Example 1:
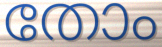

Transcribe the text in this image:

തോം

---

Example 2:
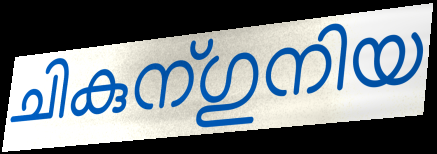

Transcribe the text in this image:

ചികുന്ഗുനിയ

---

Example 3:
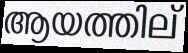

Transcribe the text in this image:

ആയത്തില്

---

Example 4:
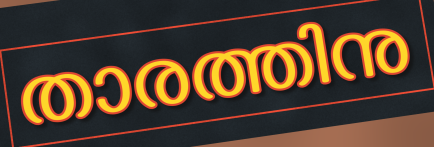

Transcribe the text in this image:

താരത്തിനു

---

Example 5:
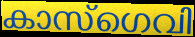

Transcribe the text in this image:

കാസ്ഗെവി